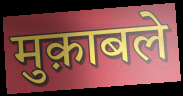
मुक़ाबले